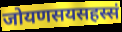
जोयणसयसहस्सं